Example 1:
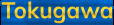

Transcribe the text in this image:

Tokugawa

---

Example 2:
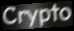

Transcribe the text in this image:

Crypto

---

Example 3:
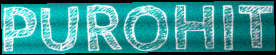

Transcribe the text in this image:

PUROHIT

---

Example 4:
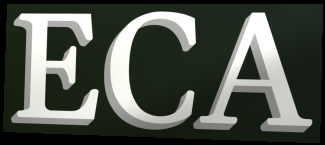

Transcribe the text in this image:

ECA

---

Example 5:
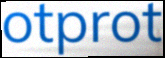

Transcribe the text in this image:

otprot